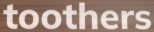
toothers